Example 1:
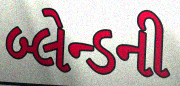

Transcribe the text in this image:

બ્લેન્ડની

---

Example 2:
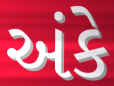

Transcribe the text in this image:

અંકે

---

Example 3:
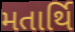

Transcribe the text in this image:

મતાર્થિ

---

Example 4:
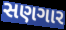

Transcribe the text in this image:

સણગાર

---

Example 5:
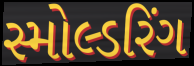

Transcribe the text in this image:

સ્મોલ્ડરિંગ